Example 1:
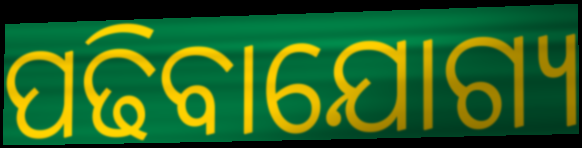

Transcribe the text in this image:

ପଢିବାଯୋଗ୍ୟ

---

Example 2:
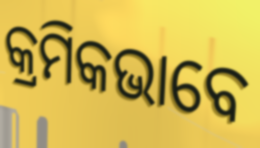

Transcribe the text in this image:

କ୍ରମିକଭାବେ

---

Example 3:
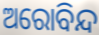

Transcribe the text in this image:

ଅରୋବିନ୍ଦ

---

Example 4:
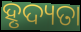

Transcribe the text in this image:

ହୃଦ୍ୟତା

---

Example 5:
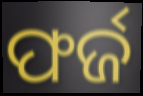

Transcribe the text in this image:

ଫର୍ଜ